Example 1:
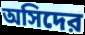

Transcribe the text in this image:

অসিদের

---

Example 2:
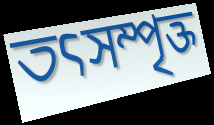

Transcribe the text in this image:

তৎসম্পৃক্ত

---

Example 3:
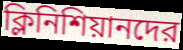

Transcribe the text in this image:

ক্লিনিশিয়ানদের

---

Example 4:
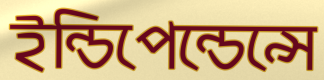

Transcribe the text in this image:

ইন্ডিপেন্ডেন্সে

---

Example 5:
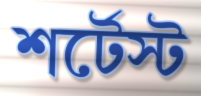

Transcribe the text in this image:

শর্টেস্ট